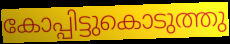
കോപ്പിട്ടുകൊടുത്തു